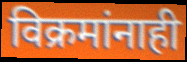
विक्रमांनाही